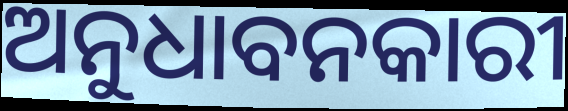
ଅନୁଧାବନକାରୀ